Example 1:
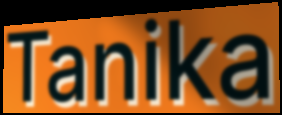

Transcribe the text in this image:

Tanika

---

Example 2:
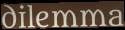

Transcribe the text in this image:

dilemma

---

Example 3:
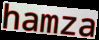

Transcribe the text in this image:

hamza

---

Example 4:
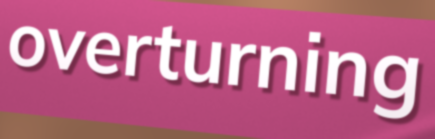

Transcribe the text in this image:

overturning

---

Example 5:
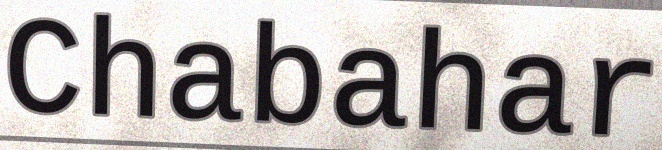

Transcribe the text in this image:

Chabahar